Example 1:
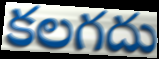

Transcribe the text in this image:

కలగదు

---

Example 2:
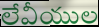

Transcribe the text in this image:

లేవీయుల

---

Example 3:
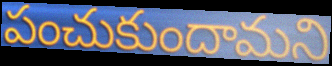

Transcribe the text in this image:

పంచుకుందామని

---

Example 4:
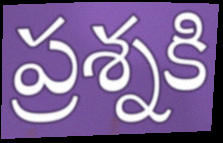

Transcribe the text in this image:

ప్రశ్నకి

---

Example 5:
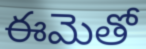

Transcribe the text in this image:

ఈమెతో